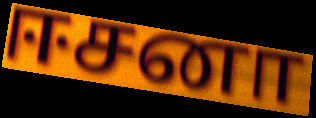
ஈசனா